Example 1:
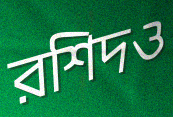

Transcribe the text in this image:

রশিদও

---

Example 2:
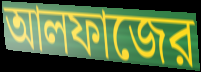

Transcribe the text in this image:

আলফাজের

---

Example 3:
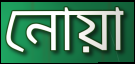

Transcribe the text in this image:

নোয়া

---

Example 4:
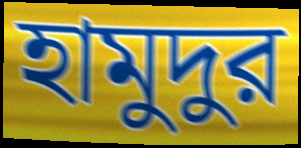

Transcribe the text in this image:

হামুদুর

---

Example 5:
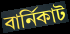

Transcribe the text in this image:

বার্নিকাট